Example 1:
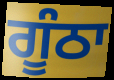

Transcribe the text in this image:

ਗੂੰਠਾ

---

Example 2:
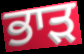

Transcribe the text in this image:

ਭਾੜ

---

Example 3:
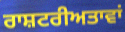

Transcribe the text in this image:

ਰਾਸ਼ਟਰੀਅਤਾਵਾਂ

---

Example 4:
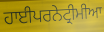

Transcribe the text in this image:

ਹਾਈਪਰਨੇਟ੍ਰੀਮੀਆ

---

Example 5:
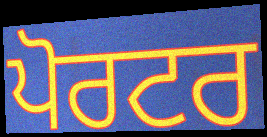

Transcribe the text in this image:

ਪੋਰਟਰ